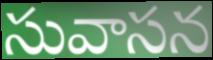
సువాసన